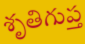
శృతిగుప్త